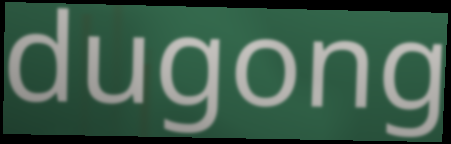
dugong